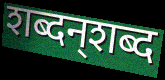
शब्दन्‌शब्द